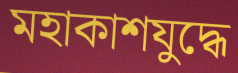
মহাকাশযুদ্ধে